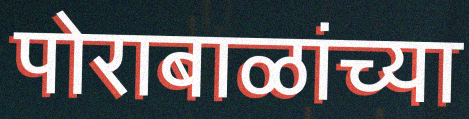
पोराबाळांच्या